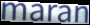
maran